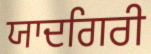
ਯਾਦਗਿਰੀ